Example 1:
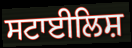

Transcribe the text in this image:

ਸਟਾਈਲਿਸ਼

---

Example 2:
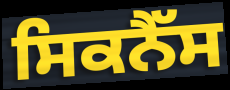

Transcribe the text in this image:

ਸਿਕਨੈੱਸ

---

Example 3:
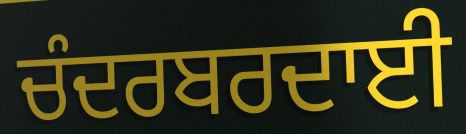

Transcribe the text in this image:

ਚੰਦਰਬਰਦਾਈ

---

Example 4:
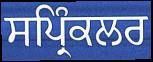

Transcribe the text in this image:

ਸਪ੍ਰਿੰਕਲਰ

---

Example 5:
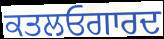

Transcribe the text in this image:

ਕਤਲਓਗਾਰਦ